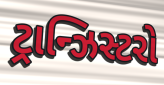
ટ્રાન્ઝિસ્ટરો